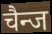
चैन्ज